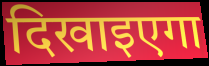
दिखाइएगा